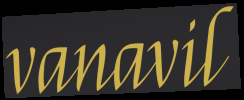
vanavil